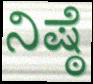
ನಿಷ್ಠೆ